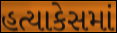
હત્યાકેસમાં